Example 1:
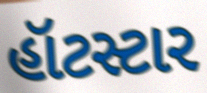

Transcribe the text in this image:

હૉટસ્ટાર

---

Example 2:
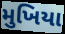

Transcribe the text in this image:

મુખિયા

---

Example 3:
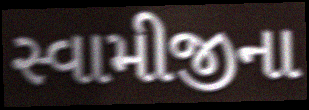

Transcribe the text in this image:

સ્વામીજીના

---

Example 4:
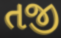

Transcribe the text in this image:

તજી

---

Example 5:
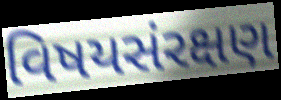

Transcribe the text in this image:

વિષયસંરક્ષણ